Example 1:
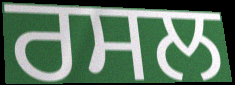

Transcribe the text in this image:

ਰਸਲ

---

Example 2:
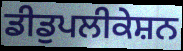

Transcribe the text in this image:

ਡੀਡੁਪਲੀਕੇਸ਼ਨ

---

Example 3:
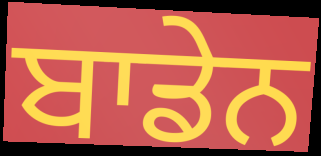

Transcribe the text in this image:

ਬਾਡੇਨ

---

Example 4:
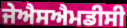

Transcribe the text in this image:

ਜੇਐਸਐਮਡੀਸੀ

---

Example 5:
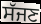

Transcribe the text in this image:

ਸੱਜਣ